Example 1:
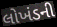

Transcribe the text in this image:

લોખંડની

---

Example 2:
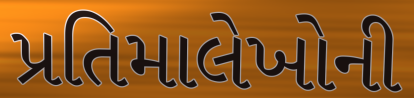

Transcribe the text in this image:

પ્રતિમાલેખોની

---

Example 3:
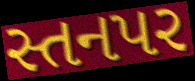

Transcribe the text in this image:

સ્તનપર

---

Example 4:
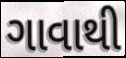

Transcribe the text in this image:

ગાવાથી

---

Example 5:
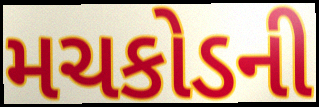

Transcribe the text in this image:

મચકોડની